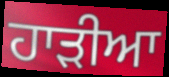
ਹਾੜੀਆ